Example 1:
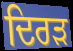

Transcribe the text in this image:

ਦਿਰੜ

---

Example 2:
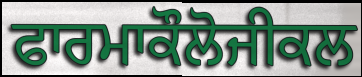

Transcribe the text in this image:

ਫਾਰਮਾਕੌਲੋਜੀਕਲ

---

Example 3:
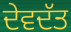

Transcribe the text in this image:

ਦੇਵਦੱਤ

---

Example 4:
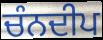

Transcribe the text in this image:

ਚੰਨਦੀਪ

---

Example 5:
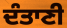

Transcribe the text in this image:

ਦੰਤਾਣੀ